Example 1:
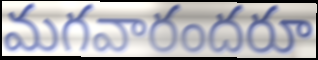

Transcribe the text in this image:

మగవారందరూ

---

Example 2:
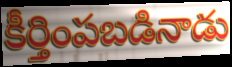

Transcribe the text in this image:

కీర్తింపబడినాడు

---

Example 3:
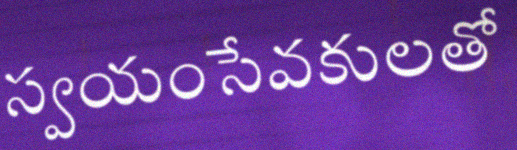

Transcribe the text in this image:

స్వయంసేవకులతో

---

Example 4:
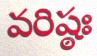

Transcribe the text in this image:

వరిష్ఠః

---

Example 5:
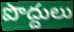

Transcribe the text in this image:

పొద్దులు